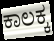
ಕಾಲಕ್ಕ